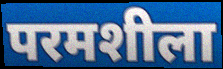
परमशीला